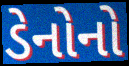
ડેનોનો